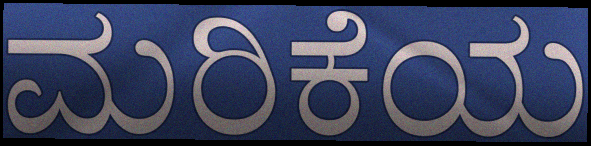
ಮರಿಕೆಯ